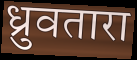
ध्रुवतारा